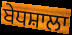
ਬੇਧਸ਼ਾਲਾ